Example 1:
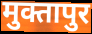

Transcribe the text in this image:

मुक्तापुर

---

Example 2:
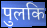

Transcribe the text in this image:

पुलकि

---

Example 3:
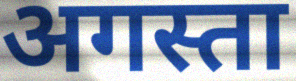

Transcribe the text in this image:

अगस्ता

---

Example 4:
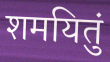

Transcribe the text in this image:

शमयितुं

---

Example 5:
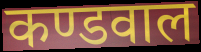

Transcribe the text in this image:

कण्डवाल